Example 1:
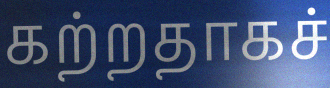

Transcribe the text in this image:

கற்றதாகச்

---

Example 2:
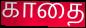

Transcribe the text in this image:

காதை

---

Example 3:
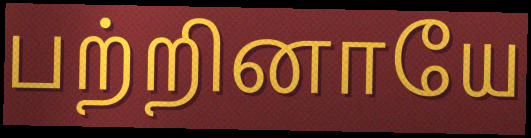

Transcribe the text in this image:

பற்றினாயே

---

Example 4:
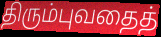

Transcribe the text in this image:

திரும்புவதைத்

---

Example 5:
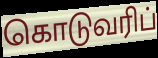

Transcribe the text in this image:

கொடுவரிப்